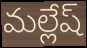
మల్లేష్